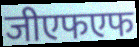
जीएफएफ